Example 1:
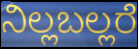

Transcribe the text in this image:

ನಿಲ್ಲಬಲ್ಲರೆ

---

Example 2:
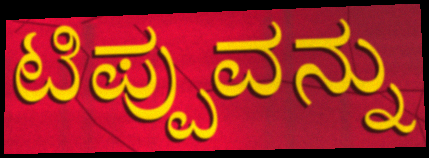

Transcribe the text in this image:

ಟಿಪ್ಪುವನ್ನು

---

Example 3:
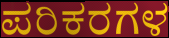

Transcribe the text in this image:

ಪರಿಕರಗಳ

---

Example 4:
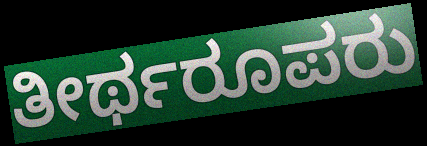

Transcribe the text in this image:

ತೀರ್ಥರೂಪರು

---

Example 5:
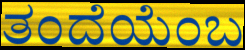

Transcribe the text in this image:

ತಂದೆಯೆಂಬ